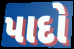
પાદો